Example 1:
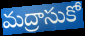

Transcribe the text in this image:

మద్రాసుకో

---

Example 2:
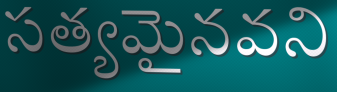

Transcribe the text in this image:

సత్యమైనవని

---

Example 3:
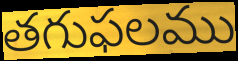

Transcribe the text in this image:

తగుఫలము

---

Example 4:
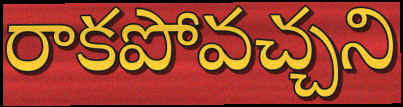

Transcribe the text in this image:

రాకపోవచ్చని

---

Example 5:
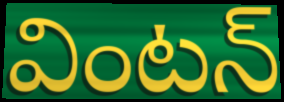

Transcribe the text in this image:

వింటన్